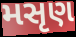
મસૃણ